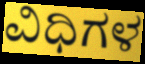
ವಿಧಿಗಳ